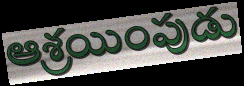
ఆశ్రయింపుడు